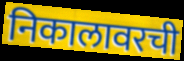
निकालावरची